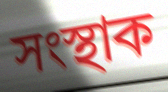
সংস্থাক